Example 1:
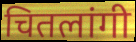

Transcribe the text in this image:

चितलांगी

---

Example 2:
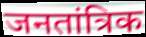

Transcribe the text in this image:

जनतांत्रिक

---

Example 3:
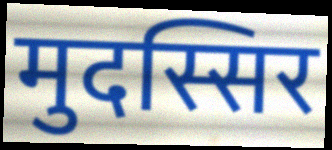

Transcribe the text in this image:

मुदस्सिर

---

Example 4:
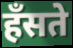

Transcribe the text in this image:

हँसते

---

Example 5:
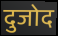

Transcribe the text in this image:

दुजोद